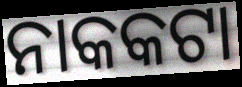
ନାକକଟା